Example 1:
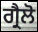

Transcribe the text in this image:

ਗ੍ਰੈਲੋ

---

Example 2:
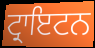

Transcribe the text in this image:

ਟ੍ਰਾਇਟਨ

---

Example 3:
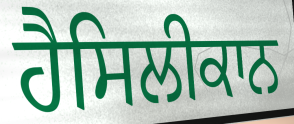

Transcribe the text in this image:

ਹੈਸਿਲੀਕਾਨ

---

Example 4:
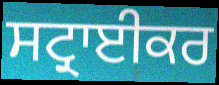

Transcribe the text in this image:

ਸਟ੍ਰਾਈਕਰ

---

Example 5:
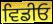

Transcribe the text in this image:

ਵਿਡੀਓ